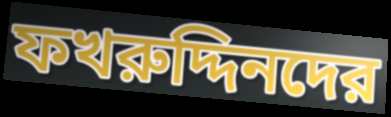
ফখরুদ্দিনদের